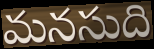
మనసుది